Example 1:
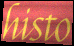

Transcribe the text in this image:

histo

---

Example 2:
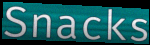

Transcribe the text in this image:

Snacks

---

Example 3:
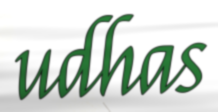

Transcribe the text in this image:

udhas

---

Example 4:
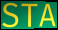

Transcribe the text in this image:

STA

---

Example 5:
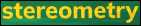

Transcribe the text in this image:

stereometry